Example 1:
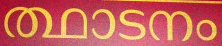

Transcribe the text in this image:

ത്ഥാടനം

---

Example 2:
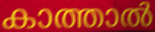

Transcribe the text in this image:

കാത്താൽ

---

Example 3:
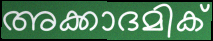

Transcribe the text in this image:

അക്കാദമിക്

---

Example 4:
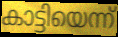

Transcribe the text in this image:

കാട്ടിയെന്ന്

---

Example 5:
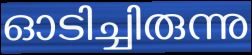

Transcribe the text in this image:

ഓടിച്ചിരുന്നു